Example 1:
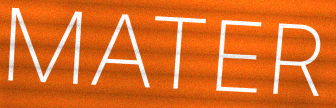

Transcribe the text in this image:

MATER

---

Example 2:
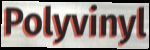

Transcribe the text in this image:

Polyvinyl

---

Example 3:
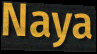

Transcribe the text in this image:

Naya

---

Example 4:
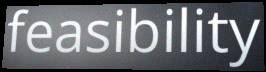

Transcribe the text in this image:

feasibility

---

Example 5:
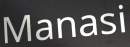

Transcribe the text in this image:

Manasi